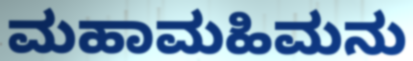
ಮಹಾಮಹಿಮನು